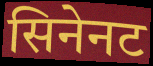
सिनेनट